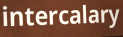
intercalary